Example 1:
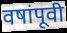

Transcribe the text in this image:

वषांपूवी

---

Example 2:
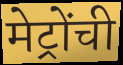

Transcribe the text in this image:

मेट्रोंची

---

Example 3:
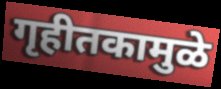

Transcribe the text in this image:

गृहीतकामुळे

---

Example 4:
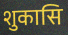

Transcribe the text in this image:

शुकासि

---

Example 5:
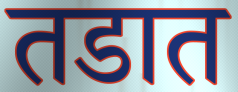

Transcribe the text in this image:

तडात